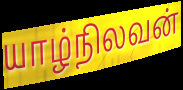
யாழ்நிலவன்